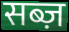
सब्ज़